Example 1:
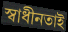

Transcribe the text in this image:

স্বাধীনতাই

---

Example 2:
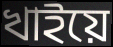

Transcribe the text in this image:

খাইয়ে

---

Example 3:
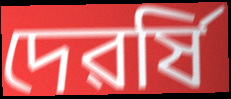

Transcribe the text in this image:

দেৱৰ্ষি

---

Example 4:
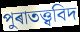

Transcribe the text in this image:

পুৰাতত্ত্ববিদ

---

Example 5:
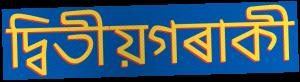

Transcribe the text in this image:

দ্বিতীয়গৰাকী